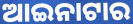
ଆଇନାଟାର